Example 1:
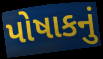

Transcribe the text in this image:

પોષાકનું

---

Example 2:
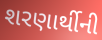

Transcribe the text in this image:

શરણાર્થીની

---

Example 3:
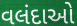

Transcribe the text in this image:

વલંદાઓ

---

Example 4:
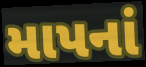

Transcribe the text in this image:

માપનાં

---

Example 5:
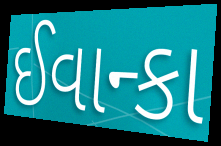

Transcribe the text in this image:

ઈવાન્કા